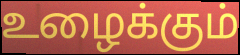
உழைக்கும்